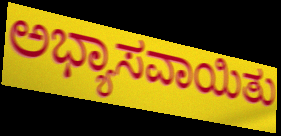
ಅಭ್ಯಾಸವಾಯಿತು